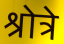
श्रोत्रे